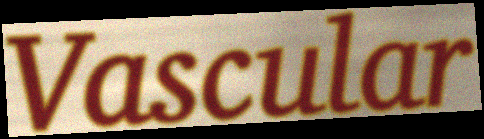
Vascular